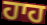
ਹਾਹ